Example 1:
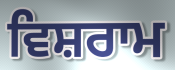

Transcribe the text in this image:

ਵਿਸ਼ਰਾਮ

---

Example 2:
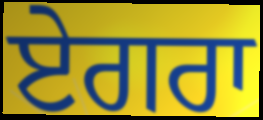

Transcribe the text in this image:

ਏਗਰਾ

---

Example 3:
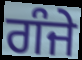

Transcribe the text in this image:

ਗੰਜੇ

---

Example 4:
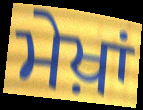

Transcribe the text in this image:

ਮੇਖ਼ਾਂ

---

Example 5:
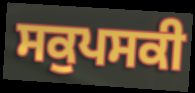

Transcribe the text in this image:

ਸਕੁਪਸਕੀ